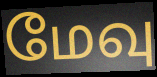
மேவு